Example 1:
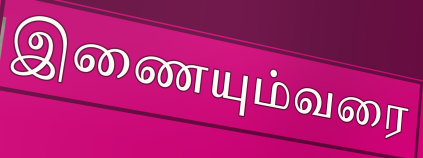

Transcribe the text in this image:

இணையும்வரை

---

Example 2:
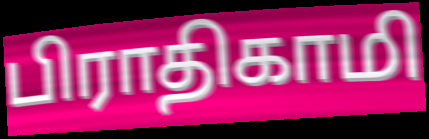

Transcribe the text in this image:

பிராதிகாமி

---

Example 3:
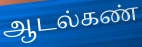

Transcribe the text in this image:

ஆடல்கண்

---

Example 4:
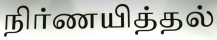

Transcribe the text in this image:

நிர்ணயித்தல்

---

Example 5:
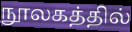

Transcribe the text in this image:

நூலகத்தில்